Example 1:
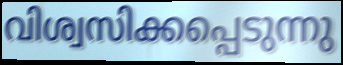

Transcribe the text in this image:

വിശ്വസിക്കപ്പെടുന്നു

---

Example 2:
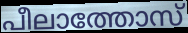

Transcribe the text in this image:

പീലാത്തോസ്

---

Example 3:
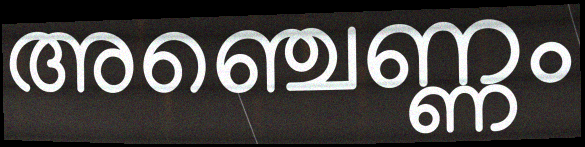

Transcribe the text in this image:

അഞ്ചെണ്ണം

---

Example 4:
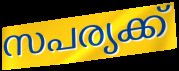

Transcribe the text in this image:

സപര്യക്ക്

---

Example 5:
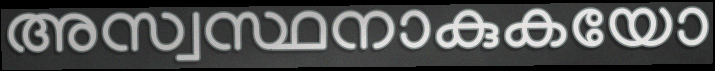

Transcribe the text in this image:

അസ്വസ്ഥനാകുകയോ